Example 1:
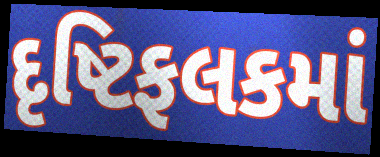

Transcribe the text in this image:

દૃષ્ટિફલકમાં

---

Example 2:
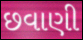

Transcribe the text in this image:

છવાણી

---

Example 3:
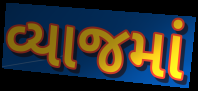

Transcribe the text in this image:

વ્યાજમાં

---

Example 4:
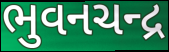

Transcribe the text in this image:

ભુવનચન્દ્ર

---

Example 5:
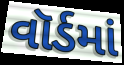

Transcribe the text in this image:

વૉર્ડમાં